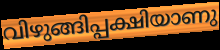
വിഴുങ്ങിപ്പക്ഷിയാണു